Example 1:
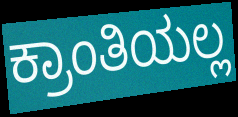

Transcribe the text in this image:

ಕ್ರಾಂತಿಯಲ್ಲ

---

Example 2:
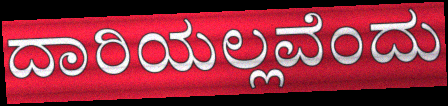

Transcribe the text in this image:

ದಾರಿಯಲ್ಲವೆಂದು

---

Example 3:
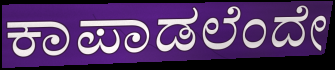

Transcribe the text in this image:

ಕಾಪಾಡಲೆಂದೇ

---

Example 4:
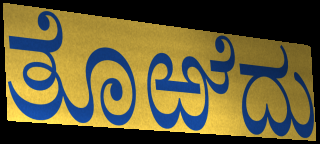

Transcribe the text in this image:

ತೊಱೆದು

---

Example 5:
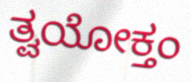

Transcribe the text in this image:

ತ್ವಯೋಕ್ತಂ